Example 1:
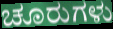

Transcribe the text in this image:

ಚೂರುಗಳು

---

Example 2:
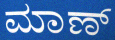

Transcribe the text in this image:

ಮಾಣ್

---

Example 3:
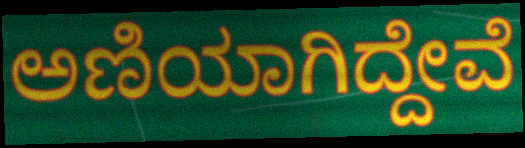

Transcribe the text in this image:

ಅಣಿಯಾಗಿದ್ದೇವೆ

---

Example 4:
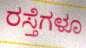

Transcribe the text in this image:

ರಸ್ತೆಗಳೂ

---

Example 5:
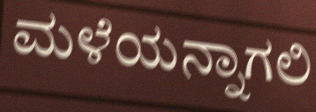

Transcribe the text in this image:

ಮಳೆಯನ್ನಾಗಲಿ